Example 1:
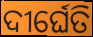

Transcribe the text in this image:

ଦୀର୍ଘେତି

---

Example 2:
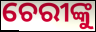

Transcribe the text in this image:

ଚେରୀଙ୍କୁ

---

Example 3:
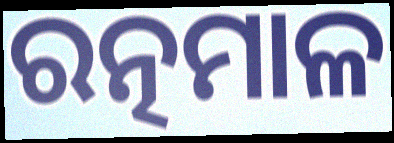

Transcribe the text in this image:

ରତ୍ନମାଳ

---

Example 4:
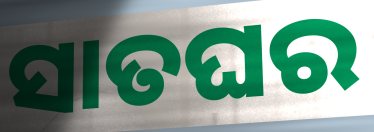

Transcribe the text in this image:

ସାତଘର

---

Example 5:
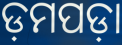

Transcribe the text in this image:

ଡ଼ମପଡ଼ା